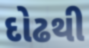
દોઢથી